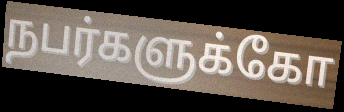
நபர்களுக்கோ